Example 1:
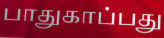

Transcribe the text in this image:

பாதுகாப்பது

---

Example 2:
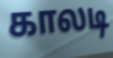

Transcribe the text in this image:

காலடி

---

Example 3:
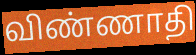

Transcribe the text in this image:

விண்ணாதி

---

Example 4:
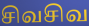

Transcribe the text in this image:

சிவசிவ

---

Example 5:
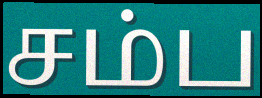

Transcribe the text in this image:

சம்ப